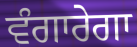
ਵੰਗਾਰੇਗਾ